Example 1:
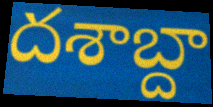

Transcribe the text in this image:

దశాబ్దా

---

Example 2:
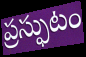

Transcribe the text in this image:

ప్రస్ఫుటం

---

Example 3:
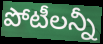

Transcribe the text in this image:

పోటీలన్నీ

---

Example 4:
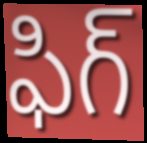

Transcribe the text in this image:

ఫిగ్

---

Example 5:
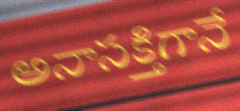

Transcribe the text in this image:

అనాసక్తిగానే